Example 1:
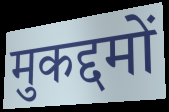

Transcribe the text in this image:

मुकद्दमों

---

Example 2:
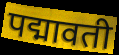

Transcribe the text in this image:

पद्मावती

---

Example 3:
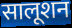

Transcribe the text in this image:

सालूशन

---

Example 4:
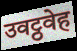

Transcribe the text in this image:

उवट्ठवेह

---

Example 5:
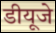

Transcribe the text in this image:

डीयूजे